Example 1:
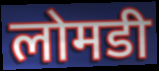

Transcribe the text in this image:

लोमडी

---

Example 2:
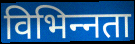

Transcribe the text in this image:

विभिन्‍नता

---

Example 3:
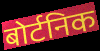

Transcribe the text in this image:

बोर्टनिक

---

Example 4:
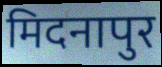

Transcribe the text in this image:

मिदनापुर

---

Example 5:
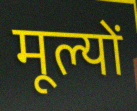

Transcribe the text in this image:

मूल्यों